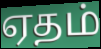
ஏதம்